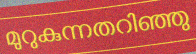
മുറുകുന്നതറിഞ്ഞു